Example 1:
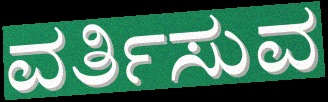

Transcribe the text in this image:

ವರ್ತಿಸುವ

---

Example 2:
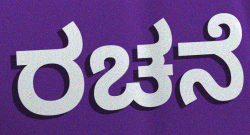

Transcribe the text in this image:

ರಚನೆ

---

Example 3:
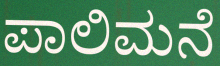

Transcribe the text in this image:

ಪಾಲಿಮನೆ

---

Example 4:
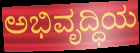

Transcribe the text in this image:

ಅಭಿವೃದ್ಧಿಯ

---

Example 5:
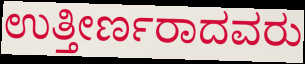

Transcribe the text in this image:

ಉತ್ತೀರ್ಣರಾದವರು